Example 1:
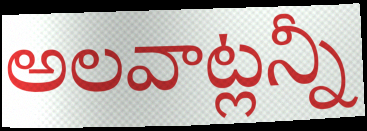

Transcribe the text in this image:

అలవాట్లన్నీ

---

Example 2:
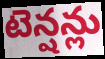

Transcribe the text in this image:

టెన్షన్లు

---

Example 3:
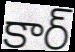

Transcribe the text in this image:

కార్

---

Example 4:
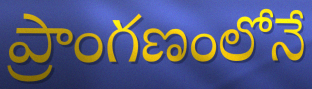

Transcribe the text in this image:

ప్రాంగణంలోనే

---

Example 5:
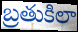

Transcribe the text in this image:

బ్రతుకిలా